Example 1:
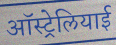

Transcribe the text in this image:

ऑस्ट्रेलियाई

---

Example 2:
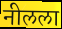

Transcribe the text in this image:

नीलला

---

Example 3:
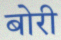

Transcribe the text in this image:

बोरी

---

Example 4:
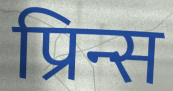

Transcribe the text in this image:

प्रिन्स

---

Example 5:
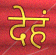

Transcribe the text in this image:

देहं